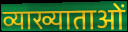
व्याख्याताओं